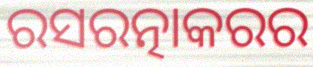
ରସରତ୍ନାକରର